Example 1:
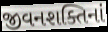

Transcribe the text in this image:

જીવનશક્તિનાં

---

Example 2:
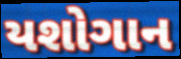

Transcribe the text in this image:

યશોગાન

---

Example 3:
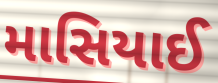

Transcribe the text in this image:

માસિયાઈ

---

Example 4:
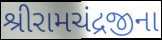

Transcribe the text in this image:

શ્રીરામચંદ્રજીના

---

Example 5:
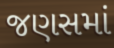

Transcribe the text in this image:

જણસમાં